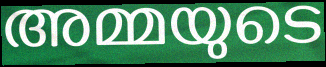
അമ്മയുടെ